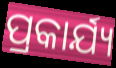
ପ୍ରକାର୍ଯ୍ୟ